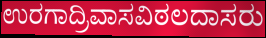
ಉರಗಾದ್ರಿವಾಸವಿಠಲದಾಸರು